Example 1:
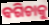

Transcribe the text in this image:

ବଗିଚାକୁ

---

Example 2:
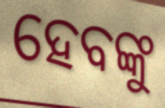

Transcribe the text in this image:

ହେବଙ୍କୁ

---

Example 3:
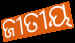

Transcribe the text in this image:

ଜୀତୀୟ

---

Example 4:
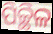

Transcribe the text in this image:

ପିଚ୍ଛିଳ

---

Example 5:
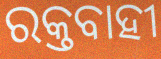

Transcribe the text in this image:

ରକ୍ତବାହୀ